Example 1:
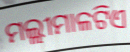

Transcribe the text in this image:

ମଲ୍ଲୀମାଳଟିଏ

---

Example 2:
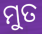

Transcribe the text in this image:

ମୁତ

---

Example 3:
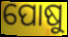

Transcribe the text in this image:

ପୋଷୁ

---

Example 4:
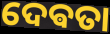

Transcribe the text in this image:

ଦେଵତା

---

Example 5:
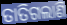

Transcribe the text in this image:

ତାତିଗଲାଣି